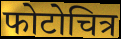
फोटोचित्र